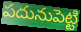
పదునుపెట్టి